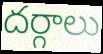
దర్గాలు